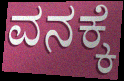
ವನಕ್ಕೆ